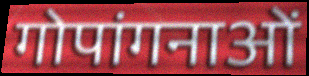
गोपांगनाओं